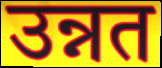
उन्नत